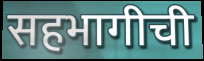
सहभागीची